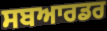
ਸਬਆਰਡਰ